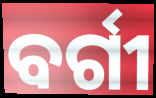
ବର୍ଗୀ